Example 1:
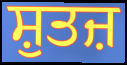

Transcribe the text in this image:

ਸ਼ੁਤਜ਼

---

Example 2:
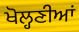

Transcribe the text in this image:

ਖੋਲ੍ਹਣੀਆਂ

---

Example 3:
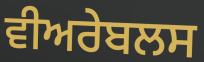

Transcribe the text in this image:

ਵੀਅਰੇਬਲਸ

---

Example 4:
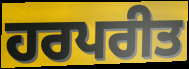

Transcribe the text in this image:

ਹਰਪਰੀਤ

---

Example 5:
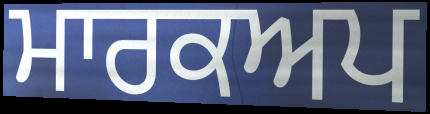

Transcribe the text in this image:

ਮਾਰਕਅਪ